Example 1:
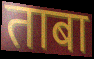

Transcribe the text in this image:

ताबा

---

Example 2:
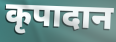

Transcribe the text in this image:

कृपादान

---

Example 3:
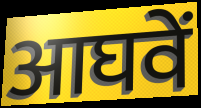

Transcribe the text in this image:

आघवें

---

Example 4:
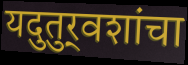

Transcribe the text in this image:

यदुतुर्वशांचा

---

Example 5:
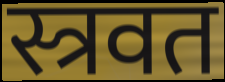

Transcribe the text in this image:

स्त्रवत